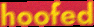
hoofed